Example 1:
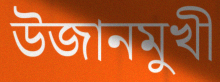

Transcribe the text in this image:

উজানমুখী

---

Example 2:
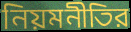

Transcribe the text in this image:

নিয়মনীতির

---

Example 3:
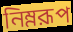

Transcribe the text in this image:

নিম্নরূপ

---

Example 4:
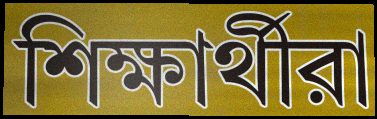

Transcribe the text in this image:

শিক্ষার্থীরা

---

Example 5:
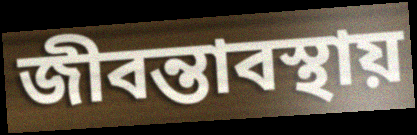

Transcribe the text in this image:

জীবন্তাবস্থায়